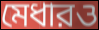
মেধারও